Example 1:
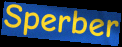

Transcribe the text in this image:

Sperber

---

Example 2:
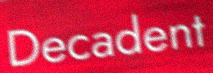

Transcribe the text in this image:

Decadent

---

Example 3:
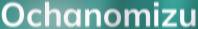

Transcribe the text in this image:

Ochanomizu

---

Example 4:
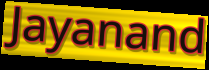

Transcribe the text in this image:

Jayanand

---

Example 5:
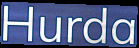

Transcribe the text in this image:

Hurda